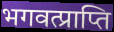
भगवत्प्राप्ति